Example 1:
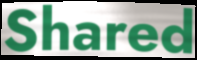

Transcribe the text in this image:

Shared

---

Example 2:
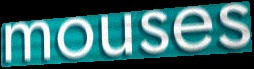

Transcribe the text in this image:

mouses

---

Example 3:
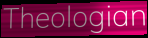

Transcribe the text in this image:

Theologian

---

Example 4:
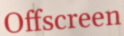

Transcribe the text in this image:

Offscreen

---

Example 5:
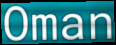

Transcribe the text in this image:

Oman